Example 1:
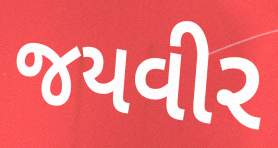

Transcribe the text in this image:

જયવીર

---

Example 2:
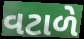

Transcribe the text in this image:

વટાળે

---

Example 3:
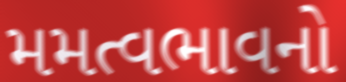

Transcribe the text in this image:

મમત્વભાવનો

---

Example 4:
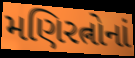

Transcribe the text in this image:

મણિરત્નોનાં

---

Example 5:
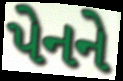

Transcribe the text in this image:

પેનને